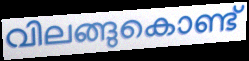
വിലങ്ങുകൊണ്ട്